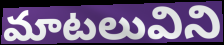
మాటలువిని